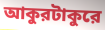
আকুরটাকুরে